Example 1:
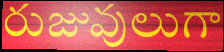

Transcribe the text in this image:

రుజువులుగా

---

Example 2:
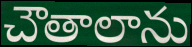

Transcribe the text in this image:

చౌతాలాను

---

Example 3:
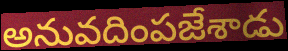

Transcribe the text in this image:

అనువదింపజేశాడు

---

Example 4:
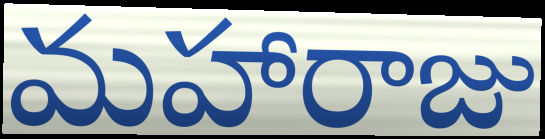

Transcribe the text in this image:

మహారాజు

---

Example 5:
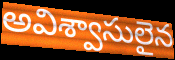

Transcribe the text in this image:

అవిశ్వాసులైన